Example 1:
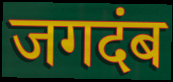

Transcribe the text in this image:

जगदंब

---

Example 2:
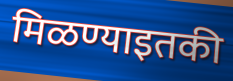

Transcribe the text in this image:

मिळण्याइतकी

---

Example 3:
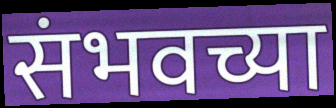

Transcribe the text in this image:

संभवच्या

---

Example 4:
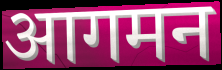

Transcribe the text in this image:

आगमन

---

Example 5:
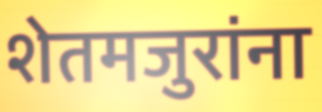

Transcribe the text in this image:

शेतमजुरांना